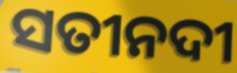
ସତୀନଦୀ